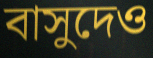
বাসুদেও